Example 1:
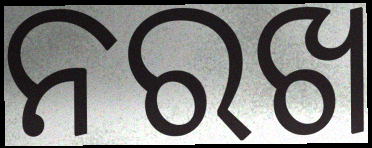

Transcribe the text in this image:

ନରଖ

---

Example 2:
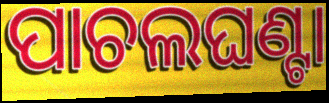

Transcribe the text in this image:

ପାଚଲଘଣ୍ଟା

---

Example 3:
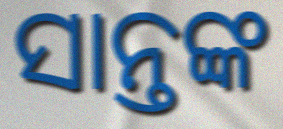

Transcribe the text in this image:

ସାନ୍ତଙ୍କ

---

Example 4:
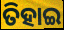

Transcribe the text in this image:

ତିହାଇ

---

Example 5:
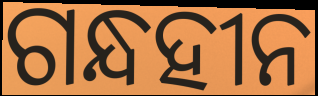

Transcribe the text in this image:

ଗନ୍ଧହୀନ